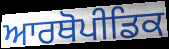
ਆਰਥੋਪੀਡਿਕ